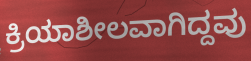
ಕ್ರಿಯಾಶೀಲವಾಗಿದ್ದವು